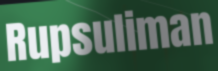
Rupsuliman